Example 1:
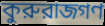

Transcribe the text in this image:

কুরুরাজগণ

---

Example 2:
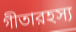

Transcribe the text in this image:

গীতারহস্য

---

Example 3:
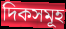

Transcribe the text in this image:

দিকসমূহ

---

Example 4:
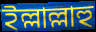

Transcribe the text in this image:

ইল্লাল্লাহু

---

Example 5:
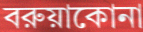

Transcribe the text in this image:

বরুয়াকোনা